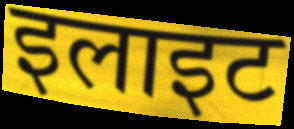
इलाइट